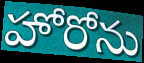
హోరోను